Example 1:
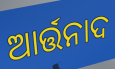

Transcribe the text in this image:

ଆର୍ତ୍ତନାଦ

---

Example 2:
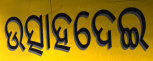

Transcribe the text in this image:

ଉତ୍ସାହଦେଇ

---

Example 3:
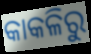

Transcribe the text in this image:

କାକଳିରୁ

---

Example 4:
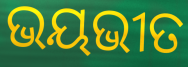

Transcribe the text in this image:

ଭୟଭୀତ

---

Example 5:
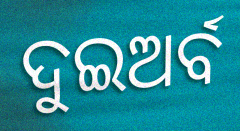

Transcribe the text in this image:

ଦୁଇଅର୍ବ